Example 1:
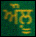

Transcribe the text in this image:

ਔਲ਼ੂ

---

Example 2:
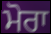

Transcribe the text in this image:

ਮੋਰਾ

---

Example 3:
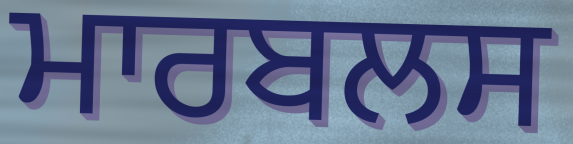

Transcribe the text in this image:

ਮਾਰਬਲਸ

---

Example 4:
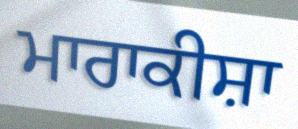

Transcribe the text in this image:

ਮਾਰਾਕੀਸ਼ਾ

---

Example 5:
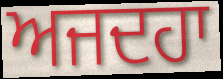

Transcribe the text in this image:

ਅਜਦਹਾ